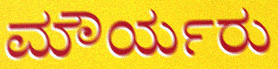
ಮೌರ್ಯರು